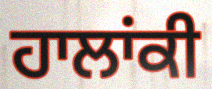
ਹਾਲਾਂਕੀ